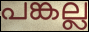
പങ്കല്ല